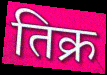
तिक्र